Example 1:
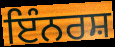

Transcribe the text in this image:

ਇੰਨਰਸ਼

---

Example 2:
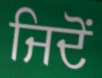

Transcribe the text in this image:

ਜਿਦੋਂ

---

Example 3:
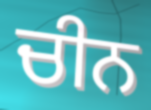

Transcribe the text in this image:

ਚੀਨ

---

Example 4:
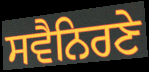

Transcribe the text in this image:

ਸਵੈਨਿਰਣੇ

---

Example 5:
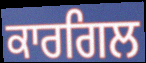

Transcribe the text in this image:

ਕਾਰਗਿਲ